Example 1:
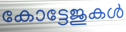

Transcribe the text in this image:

കോട്ടേജുകൾ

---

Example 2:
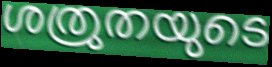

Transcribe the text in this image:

ശത്രുതയുടെ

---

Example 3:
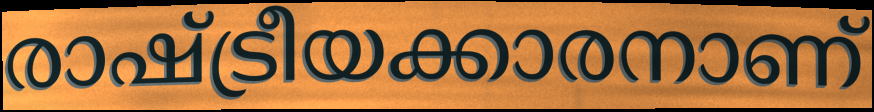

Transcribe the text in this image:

രാഷ്ട്രീയക്കാരനാണ്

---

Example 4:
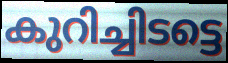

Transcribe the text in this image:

കുറിച്ചിടട്ടെ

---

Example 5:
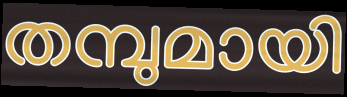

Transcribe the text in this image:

തമ്പുമായി